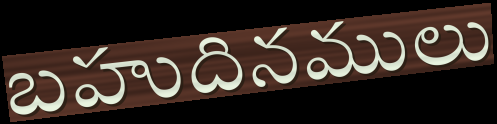
బహుదినములు